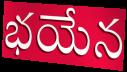
భయేన